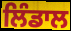
ਲਿੰਡਾਲ